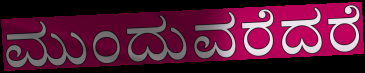
ಮುಂದುವರೆದರೆ